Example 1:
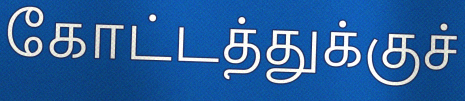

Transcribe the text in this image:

கோட்டத்துக்குச்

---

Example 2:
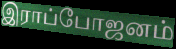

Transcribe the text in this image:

இராப்போஜனம்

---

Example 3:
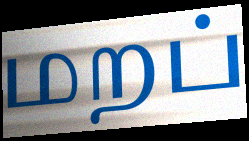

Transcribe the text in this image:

மறப்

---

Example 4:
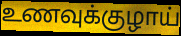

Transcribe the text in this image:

உணவுக்குழாய்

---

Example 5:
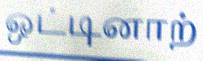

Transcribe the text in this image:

ஒட்டினாற்